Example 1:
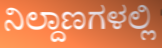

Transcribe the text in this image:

ನಿಲ್ದಾಣಗಳಲ್ಲಿ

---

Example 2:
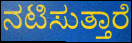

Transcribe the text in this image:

ನಟಿಸುತ್ತಾರೆ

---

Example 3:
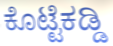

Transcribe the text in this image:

ಕೊಟ್ಟೆಕಡ್ಡಿ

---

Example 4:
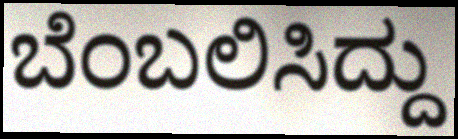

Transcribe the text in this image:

ಬೆಂಬಲಿಸಿದ್ದು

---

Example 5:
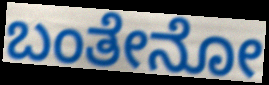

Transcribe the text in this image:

ಬಂತೇನೋ